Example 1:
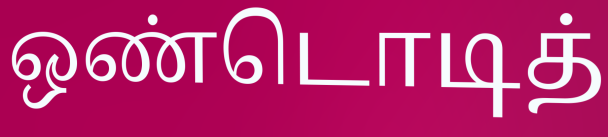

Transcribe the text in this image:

ஒண்டொடித்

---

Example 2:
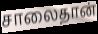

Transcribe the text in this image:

சாலைதான்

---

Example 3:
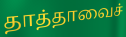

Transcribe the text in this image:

தாத்தாவைச்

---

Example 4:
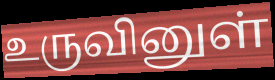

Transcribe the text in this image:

உருவினுள்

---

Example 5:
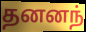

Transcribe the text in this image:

தனனந்